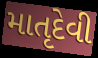
માતૃદેવી